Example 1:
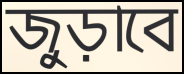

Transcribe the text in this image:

জুড়াবে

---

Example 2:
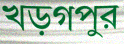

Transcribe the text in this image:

খড়গপুর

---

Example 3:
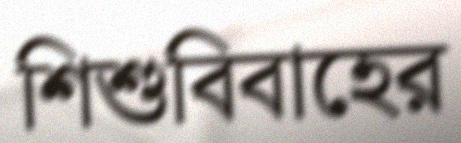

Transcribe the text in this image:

শিশুবিবাহের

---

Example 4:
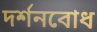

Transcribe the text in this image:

দর্শনবোধ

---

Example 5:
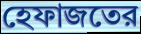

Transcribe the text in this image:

হেফাজতের